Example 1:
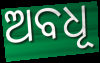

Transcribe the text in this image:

ଅବଧୂ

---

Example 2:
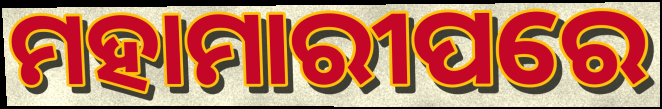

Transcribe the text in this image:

ମହାମାରୀପରେ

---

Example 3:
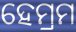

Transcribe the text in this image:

ହେମ୍ରମ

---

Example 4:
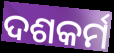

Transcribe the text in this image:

ଦଶକର୍ମ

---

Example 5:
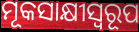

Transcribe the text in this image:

ମୂକସାକ୍ଷୀସ୍ୱରୂପ